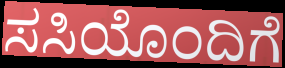
ಸಸಿಯೊಂದಿಗೆ